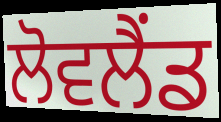
ਲੋਵਲੈਂਡ